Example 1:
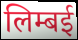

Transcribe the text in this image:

लिम्बई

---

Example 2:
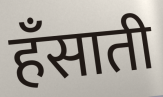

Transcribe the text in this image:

हँसाती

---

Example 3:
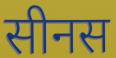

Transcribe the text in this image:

सीनस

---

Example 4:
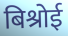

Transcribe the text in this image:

बिश्रोई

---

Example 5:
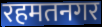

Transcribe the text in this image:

रहमतनगर